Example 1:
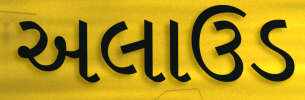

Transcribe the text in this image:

અલાઉડ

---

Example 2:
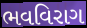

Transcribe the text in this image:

ભવવિરાગ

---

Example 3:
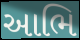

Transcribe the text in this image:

આભિ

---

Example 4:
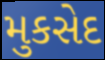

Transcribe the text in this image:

મુકસેદ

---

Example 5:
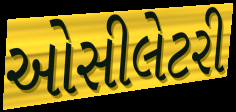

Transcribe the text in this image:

ઓસીલેટરી